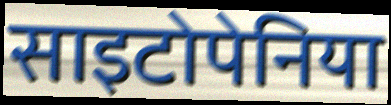
साइटोपेनिया